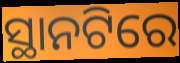
ସ୍ଥାନଟିରେ